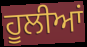
ਹੂਲੀਆਂ